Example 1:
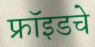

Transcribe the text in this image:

फ्रॉइडचे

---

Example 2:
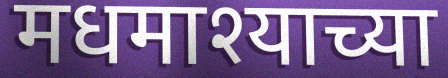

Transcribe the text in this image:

मधमाश्याच्या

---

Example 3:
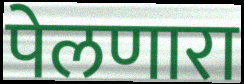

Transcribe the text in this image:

पेलणारा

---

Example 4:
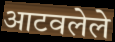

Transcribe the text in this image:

आटवलेले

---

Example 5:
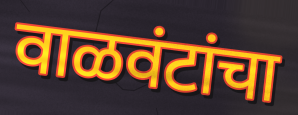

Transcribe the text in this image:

वाळवंटांचा